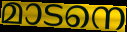
മാടനെ